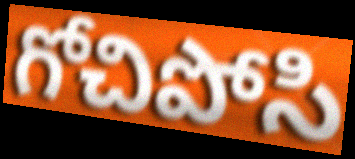
గోచిపోసి